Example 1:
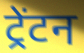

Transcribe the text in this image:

ट्रेंटन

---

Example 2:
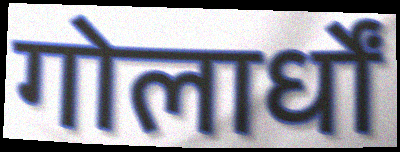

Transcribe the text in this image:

गोलार्धों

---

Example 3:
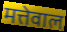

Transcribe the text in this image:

मत्तेवाल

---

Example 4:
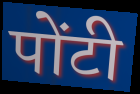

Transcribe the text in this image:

पोंटी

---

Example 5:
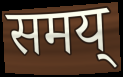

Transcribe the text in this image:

समय्